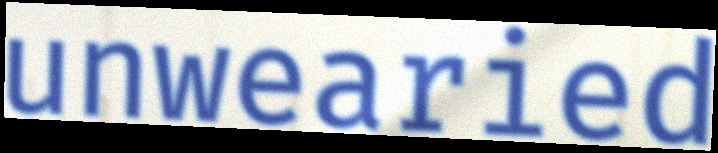
unwearied